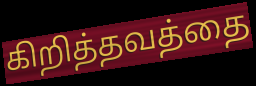
கிறித்தவத்தை